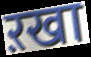
ऱखा